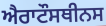
ਐਰਾਟੌਸਥੀਨਸ